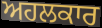
ਅਹਲਕਾਰ